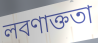
লবণাক্ততা